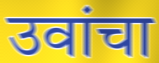
उवांचा